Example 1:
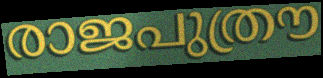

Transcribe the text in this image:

രാജപുത്രൗ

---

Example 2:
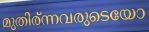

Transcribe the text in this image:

മുതിര്ന്നവരുടെയോ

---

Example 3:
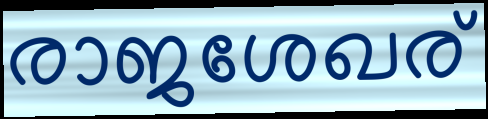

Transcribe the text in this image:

രാജശേഖര്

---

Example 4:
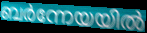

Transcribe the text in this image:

ബർന്നേയയിൽ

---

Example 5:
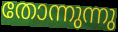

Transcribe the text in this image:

തോന്നുന്നു